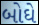
બોઘે